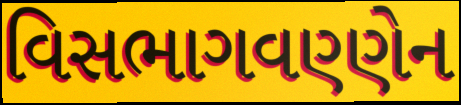
વિસભાગવણ્ણેન